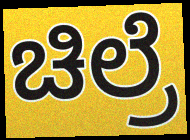
ಚಿಲ್ರೆ